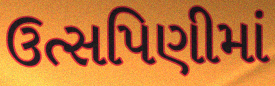
ઉત્સપિણીમાં